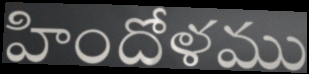
హిందోళము